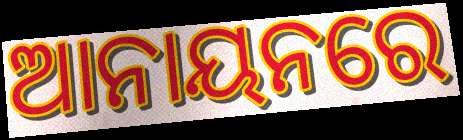
ଆନାୟନରେ